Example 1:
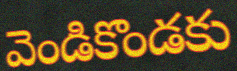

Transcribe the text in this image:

వెండికొండకు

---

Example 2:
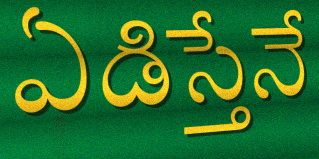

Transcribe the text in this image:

ఏడిస్తేనే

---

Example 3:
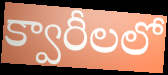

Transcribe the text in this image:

క్వారీలలో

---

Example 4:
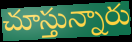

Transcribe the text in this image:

చూస్తున్నారు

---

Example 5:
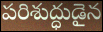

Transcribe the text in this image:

పరిశుద్ధుడైన